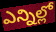
ఎన్నిల్లో